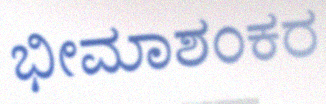
ಭೀಮಾಶಂಕರ